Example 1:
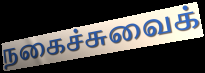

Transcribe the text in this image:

நகைச்சுவைக்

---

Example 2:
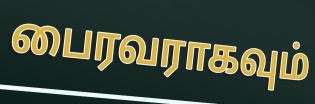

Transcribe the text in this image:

பைரவராகவும்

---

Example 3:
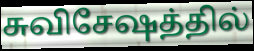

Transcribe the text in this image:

சுவிசேஷத்தில்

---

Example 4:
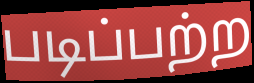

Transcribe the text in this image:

படிப்பற்ற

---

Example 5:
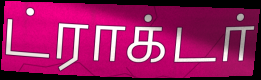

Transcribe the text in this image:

ட்ராக்டர்